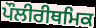
ਪੌਲੀਰੀਥਮਿਕ